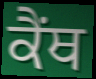
ਕੈਂਥ